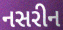
નસરીન